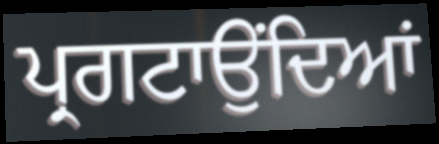
ਪ੍ਰਗਟਾਉਂਦਿਆਂ